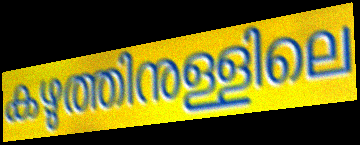
കഴുത്തിനുള്ളിലെ